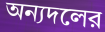
অন্যদলের